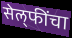
सेल्फींचा